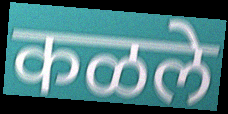
कळले